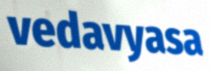
vedavyasa